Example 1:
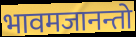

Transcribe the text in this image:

भावमजानन्तो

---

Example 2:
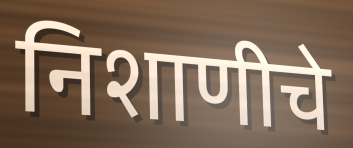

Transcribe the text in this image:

निशाणीचे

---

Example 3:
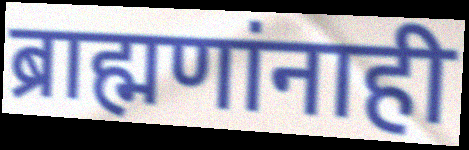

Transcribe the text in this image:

ब्राह्मणांनाही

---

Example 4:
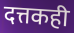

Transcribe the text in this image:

दत्तकही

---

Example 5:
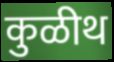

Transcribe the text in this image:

कुळीथ